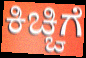
ಕಿಚ್ಚಿಗೆ